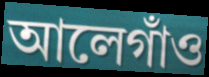
আলেগাঁও